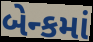
બેન્કમાં